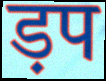
ड़प